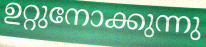
ഉറ്റുനോക്കുന്നു